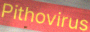
Pithovirus